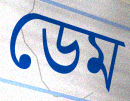
ডেম